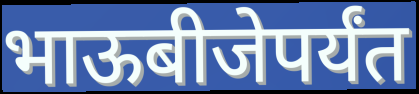
भाऊबीजेपर्यंत